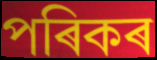
পৰিকৰ